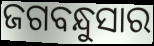
ଜଗବନ୍ଧୁସାର